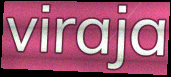
viraja